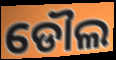
ଡୌଲ